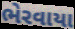
ભેરવાયા